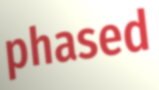
phased